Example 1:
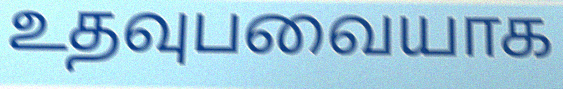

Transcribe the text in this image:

உதவுபவையாக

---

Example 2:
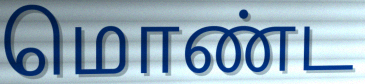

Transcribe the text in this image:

மொண்ட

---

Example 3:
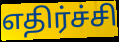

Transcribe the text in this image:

எதிர்ச்சி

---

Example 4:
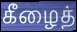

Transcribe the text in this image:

கீழைத்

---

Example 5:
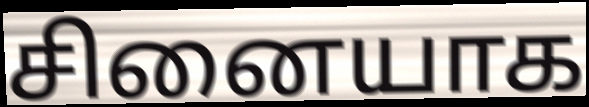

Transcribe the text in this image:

சினையாக